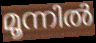
മൂന്നിൽ